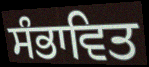
ਸੰਭਾਵਿਤ